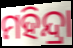
ମହିନ୍ଦ୍ରା